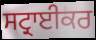
ਸਟ੍ਰਾਈਕਰ